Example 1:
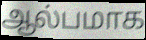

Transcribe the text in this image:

ஆல்பமாக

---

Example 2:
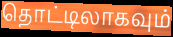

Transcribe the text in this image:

தொட்டிலாகவும்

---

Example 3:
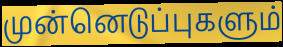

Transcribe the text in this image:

முன்னெடுப்புகளும்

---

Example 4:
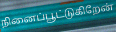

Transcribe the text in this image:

நினைப்பூட்டுகிறேன்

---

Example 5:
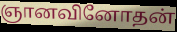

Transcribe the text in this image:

ஞானவினோதன்